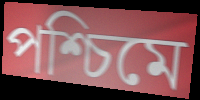
পশ্চিমে